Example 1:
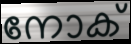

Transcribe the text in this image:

നോക്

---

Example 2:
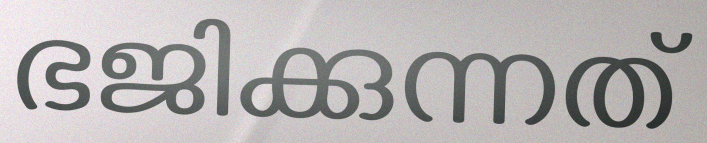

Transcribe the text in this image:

ഭജിക്കുന്നത്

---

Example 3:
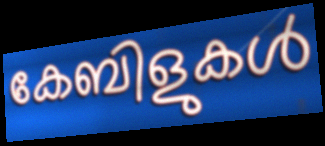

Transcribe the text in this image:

കേബിളുകൾ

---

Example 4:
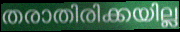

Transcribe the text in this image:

തരാതിരിക്കയില്ല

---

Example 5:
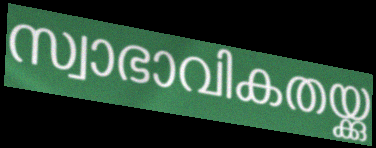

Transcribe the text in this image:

സ്വാഭാവികതയ്ക്കു